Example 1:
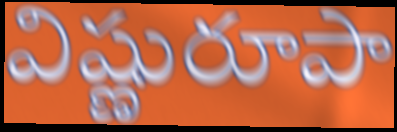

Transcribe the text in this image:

విష్ణురూపా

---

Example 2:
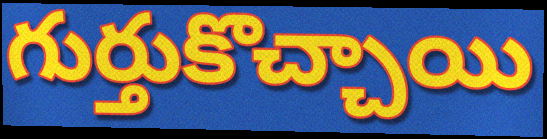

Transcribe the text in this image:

గుర్తుకొచ్చాయి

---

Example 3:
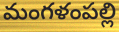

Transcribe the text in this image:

మంగళంపల్లి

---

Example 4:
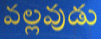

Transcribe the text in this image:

వల్లవుడు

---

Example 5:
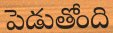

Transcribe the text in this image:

పెడుతోంది